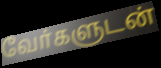
வேர்களுடன்